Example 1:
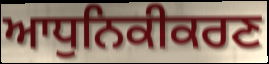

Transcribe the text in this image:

ਆਧੁਨਿਕੀਕਰਣ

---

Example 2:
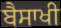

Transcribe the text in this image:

ਬੈਸਾਖੀ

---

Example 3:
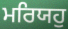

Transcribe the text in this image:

ਮਰਿਯਹੁ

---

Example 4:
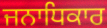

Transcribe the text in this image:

ਜਨਾਧਿਕਾਰ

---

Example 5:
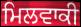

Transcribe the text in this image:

ਮਿਲਵਾਕੀ